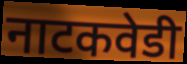
नाटकवेडी